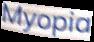
Myopia